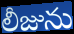
లీజును